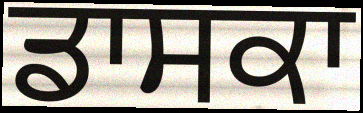
ਡਾਸਕਾ